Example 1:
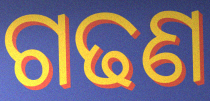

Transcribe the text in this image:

ଗଢଣ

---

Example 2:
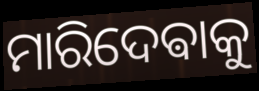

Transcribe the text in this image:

ମାରିଦେଵାକୁ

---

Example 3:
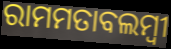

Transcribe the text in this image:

ରାମମତାବଲମ୍ବୀ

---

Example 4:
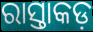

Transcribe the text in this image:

ରାସ୍ତାକଡ଼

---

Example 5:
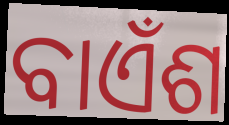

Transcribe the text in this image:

ବାଏଁଶ